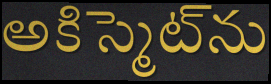
అకిస్మెట్‌ను